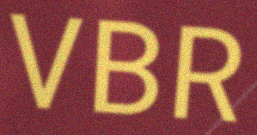
VBR